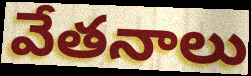
వేతనాలు